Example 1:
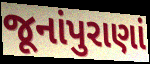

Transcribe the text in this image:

જૂનાંપુરાણાં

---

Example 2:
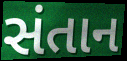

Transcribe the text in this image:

સંતાન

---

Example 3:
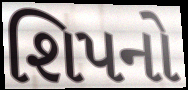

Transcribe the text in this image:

શિપનો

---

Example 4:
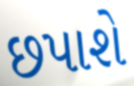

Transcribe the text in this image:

છપાશે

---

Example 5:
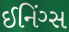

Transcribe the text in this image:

ઈનિંગ્સ